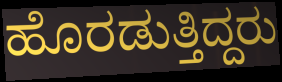
ಹೊರಡುತ್ತಿದ್ದರು